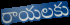
రాయలకు